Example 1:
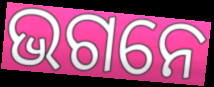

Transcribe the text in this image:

ଭଗନେ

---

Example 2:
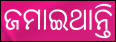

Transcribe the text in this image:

ଜମାଇଥାନ୍ତି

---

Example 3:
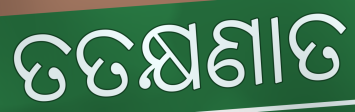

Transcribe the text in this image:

ତତକ୍ଷଣାତ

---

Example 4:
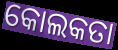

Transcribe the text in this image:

କୋଲକତା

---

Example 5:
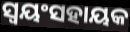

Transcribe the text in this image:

ସ୍ଵୟଂସହାୟକ